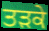
ਤੜਕੇ